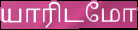
யாரிடமோ